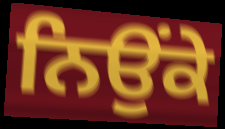
ਨਿਉਂਕੇ